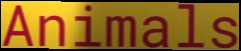
Animals